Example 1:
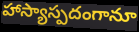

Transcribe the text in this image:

హాస్యాస్పదంగానూ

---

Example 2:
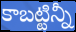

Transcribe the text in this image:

కాబట్టిన్నీ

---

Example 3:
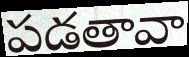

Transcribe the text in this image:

పడతావా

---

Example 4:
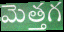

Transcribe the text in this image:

మెత్తగ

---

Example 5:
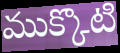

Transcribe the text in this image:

ముక్కొటి